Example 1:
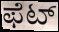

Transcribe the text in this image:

ಫೆಟ್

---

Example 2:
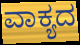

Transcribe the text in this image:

ವಾಕ್ಯದ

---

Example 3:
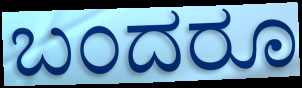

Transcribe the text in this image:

ಬಂದರೂ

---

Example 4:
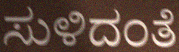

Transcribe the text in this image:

ಸುಳಿದಂತೆ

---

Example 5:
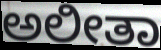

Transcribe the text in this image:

ಅಲೀತಾ